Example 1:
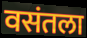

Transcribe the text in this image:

वसंतला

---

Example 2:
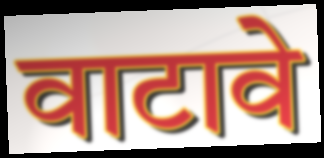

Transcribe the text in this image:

वाटावे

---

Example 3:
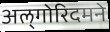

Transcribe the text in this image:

अल्गोरिदमने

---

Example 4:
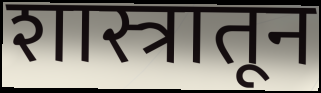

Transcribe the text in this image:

शास्त्रातून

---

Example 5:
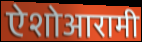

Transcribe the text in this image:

ऐशोआरामी